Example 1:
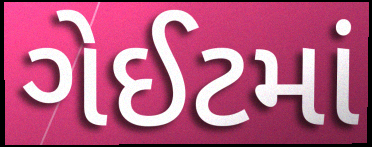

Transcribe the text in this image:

ગેઈટમાં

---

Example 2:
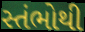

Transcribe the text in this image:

સ્તંભોથી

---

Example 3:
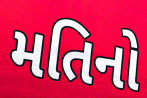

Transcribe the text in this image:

મતિનો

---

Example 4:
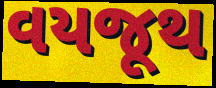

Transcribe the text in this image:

વયજૂથ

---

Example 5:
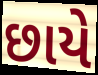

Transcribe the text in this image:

છાયે